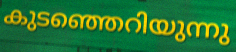
കുടഞ്ഞെറിയുന്നു